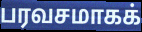
பரவசமாகக்